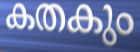
കതകും